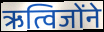
ऋत्विजोंने